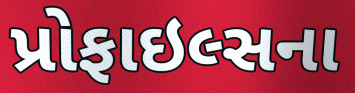
પ્રોફાઇલ્સના